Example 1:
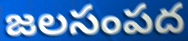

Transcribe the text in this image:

జలసంపద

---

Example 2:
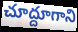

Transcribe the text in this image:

చూద్దూగాని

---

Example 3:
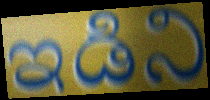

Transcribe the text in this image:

ఇడిని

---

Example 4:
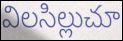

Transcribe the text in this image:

విలసిల్లుచూ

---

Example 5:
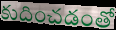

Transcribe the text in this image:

కుదించడంతో